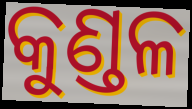
କୁଣ୍ଡଳ